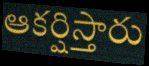
ఆకర్షిస్తారు